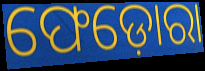
ଫେଡ଼ୋରା